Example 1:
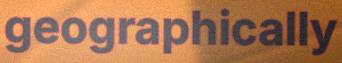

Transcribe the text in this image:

geographically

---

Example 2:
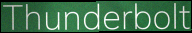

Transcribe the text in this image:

Thunderbolt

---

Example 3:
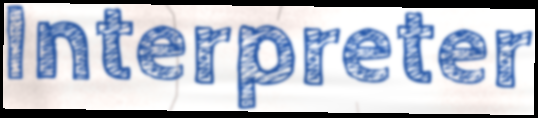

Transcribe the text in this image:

Interpreter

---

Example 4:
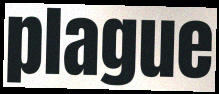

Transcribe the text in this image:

plague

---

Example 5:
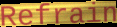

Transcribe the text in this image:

Refrain